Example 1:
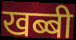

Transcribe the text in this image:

खब्बी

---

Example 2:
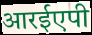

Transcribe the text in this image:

आरईएपी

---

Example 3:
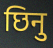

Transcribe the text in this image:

छिनु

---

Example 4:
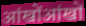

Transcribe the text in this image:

आंखोंआंखों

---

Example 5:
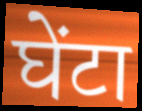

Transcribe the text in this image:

घेंटा